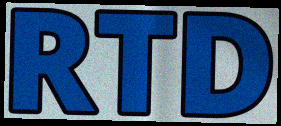
RTD